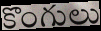
కొంగులు